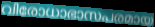
വിരോധാഭാസപരമായ